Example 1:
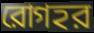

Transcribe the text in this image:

রোগহর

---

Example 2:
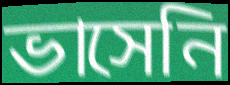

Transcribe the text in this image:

ভাসেনি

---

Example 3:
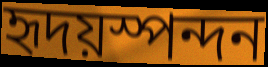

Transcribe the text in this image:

হৃদয়স্পন্দন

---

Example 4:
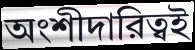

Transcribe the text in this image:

অংশীদারিত্বই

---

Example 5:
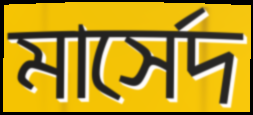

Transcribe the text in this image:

মার্সেদ